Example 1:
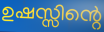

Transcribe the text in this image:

ഉഷസ്സിന്റെ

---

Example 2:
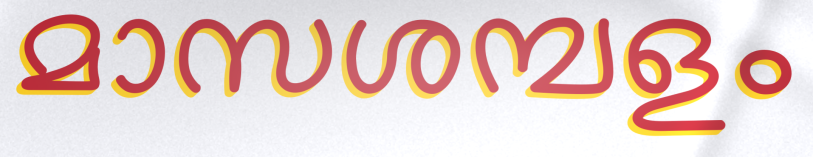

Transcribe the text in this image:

മാസശമ്പളം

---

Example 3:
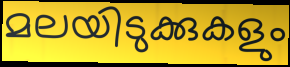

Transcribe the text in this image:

മലയിടുക്കുകളും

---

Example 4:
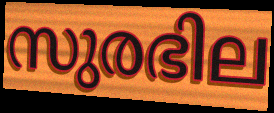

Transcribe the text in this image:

സുരഭില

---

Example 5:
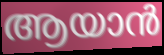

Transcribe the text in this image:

ആയാൻ